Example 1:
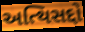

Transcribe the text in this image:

અત્થિસદ્દો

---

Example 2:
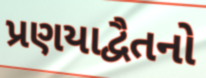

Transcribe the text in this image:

પ્રણયાદ્વૈતનો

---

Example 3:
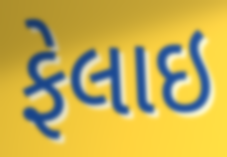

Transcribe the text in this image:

ફેલાઇ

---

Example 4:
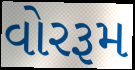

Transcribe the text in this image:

વોરરૂમ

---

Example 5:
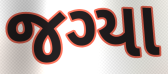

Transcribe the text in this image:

જગ્યા